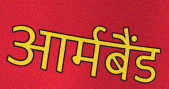
आर्मबैंड